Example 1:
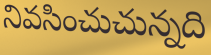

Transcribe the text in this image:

నివసించుచున్నది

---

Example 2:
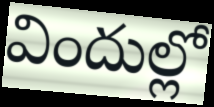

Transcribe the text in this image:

విందుల్లో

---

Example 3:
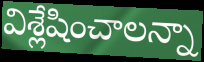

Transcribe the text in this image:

విశ్లేషించాలన్నా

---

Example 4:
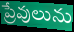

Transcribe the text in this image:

ప్రేవులును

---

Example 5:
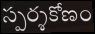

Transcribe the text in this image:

స్పర్శకోణం